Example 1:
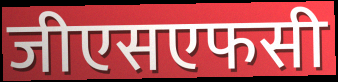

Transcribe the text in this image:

जीएसएफसी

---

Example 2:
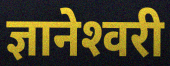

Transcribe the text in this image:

ज्ञानेश्‍वरी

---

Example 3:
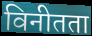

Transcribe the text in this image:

विनीतता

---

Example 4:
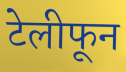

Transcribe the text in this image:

टेलीफून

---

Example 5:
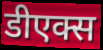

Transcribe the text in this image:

डीएक्स